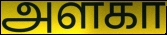
அளகா